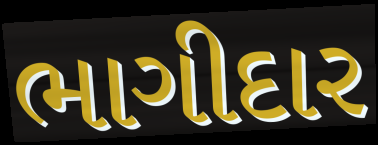
ભાગીદાર